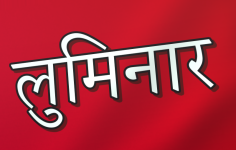
लुमिनार